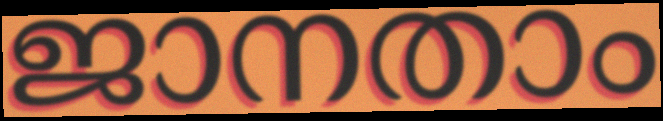
ജാനതാം